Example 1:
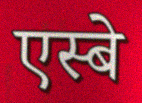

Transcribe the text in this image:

एस्बे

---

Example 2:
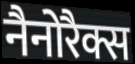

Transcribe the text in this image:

नैनोरैक्स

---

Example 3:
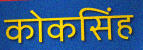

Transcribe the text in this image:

कोकसिंह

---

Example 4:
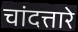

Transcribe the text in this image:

चांदत्तारे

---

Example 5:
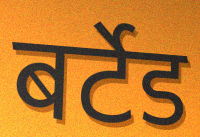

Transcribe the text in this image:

बर्टेड